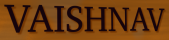
VAISHNAV